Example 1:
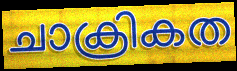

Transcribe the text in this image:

ചാക്രികത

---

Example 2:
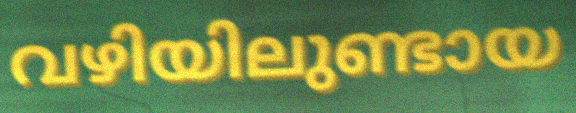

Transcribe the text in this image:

വഴിയിലുണ്ടായ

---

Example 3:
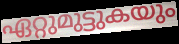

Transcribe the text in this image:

ഏറ്റുമുട്ടുകയും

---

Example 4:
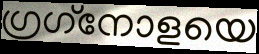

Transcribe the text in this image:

ഗ്രഗ്‌നോളയെ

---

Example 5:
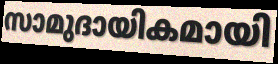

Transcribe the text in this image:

സാമുദായികമായി